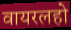
वायरलहो